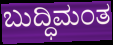
ಬುದ್ಧಿಮಂತ